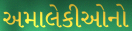
અમાલેકીઓનો